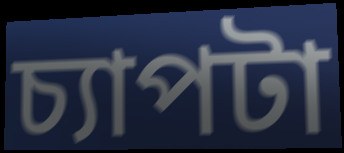
চ্যাপটা